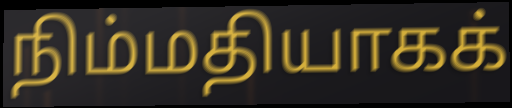
நிம்மதியாகக்